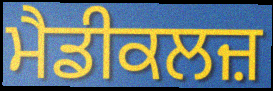
ਮੈਡੀਕਲਜ਼